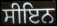
ਸੀਇਨ